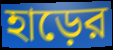
হাড়ের